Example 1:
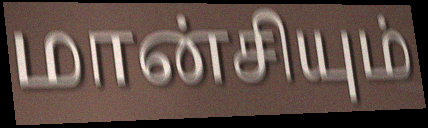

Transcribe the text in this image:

மான்சியும்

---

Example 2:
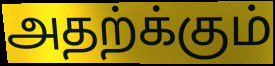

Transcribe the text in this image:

அதற்க்கும்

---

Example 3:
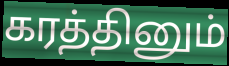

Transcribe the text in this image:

கரத்தினும்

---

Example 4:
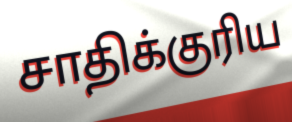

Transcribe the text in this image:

சாதிக்குரிய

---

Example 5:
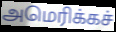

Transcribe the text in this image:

அமெரிக்கச்